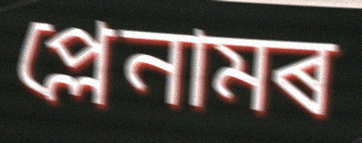
প্লেনামৰ